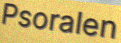
Psoralen